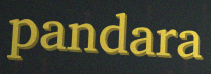
pandara